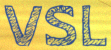
VSL